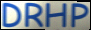
DRHP